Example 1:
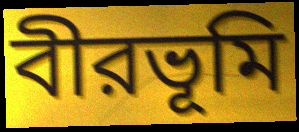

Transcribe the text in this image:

বীরভূমি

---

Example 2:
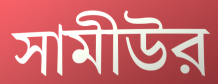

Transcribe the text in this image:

সামীউর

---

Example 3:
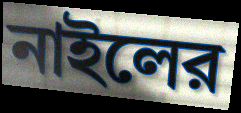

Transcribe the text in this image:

নাইলের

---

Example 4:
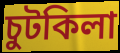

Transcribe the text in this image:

চুটকিলা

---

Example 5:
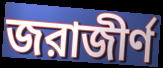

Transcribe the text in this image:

জরাজীর্ণ